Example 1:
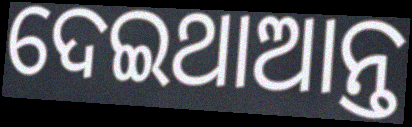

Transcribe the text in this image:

ଦେଇଥାଆନ୍ତ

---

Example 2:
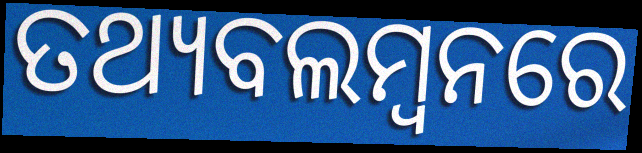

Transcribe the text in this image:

ତଥ୍ୟବଲମ୍ବନରେ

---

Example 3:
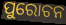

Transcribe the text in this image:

ପୁରୋଚନ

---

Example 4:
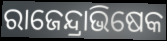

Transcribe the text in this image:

ରାଜେନ୍ଦ୍ରାଭିଷେକ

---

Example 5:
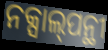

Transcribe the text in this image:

ନକ୍ସାଲ୍‌ପନ୍ଥୀ